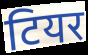
टियर